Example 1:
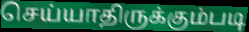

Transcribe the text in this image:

செய்யாதிருக்கும்படி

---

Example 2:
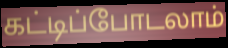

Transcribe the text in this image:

கட்டிப்போடலாம்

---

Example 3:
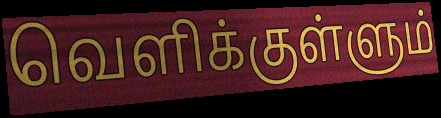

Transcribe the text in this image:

வெளிக்குள்ளும்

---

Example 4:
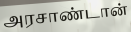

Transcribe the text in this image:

அரசாண்டான்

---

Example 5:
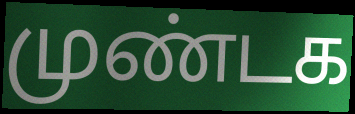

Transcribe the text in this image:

முண்டக